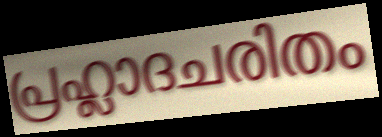
പ്രഹ്ലാദചരിതം